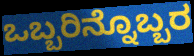
ಒಬ್ಬರಿನ್ನೊಬ್ಬರ